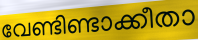
വേണ്ടിണ്ടാക്കീതാ